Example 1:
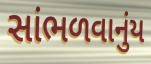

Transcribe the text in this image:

સાંભળવાનુંય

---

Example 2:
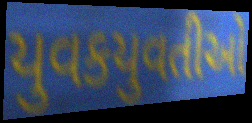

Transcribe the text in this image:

યુવકયુવતીઓ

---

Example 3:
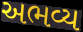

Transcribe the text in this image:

અભવ્ય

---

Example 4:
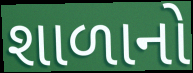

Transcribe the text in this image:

શાળાનો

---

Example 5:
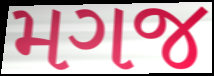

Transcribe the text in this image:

મગજ